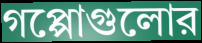
গপ্পোগুলোর